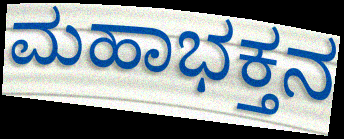
ಮಹಾಭಕ್ತನ